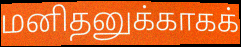
மனிதனுக்காகக்